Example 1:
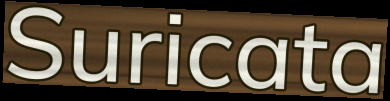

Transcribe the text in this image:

Suricata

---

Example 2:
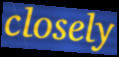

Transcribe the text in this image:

closely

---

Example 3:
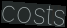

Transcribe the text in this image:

costs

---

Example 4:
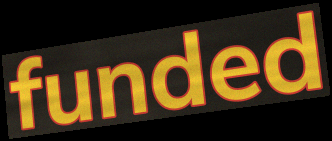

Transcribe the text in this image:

funded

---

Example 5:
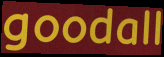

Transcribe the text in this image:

goodall